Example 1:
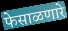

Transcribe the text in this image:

फेसाळणारे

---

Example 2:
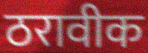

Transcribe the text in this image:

ठरावीक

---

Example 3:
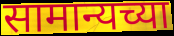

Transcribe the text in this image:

सामान्यच्या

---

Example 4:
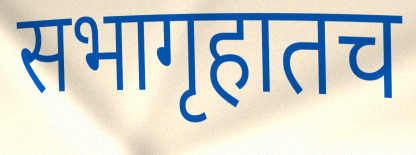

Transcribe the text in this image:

सभागृहातच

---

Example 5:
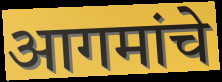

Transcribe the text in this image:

आगमांचे